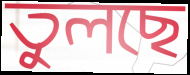
তুলছে